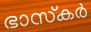
ഭാസ്‌കർ